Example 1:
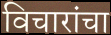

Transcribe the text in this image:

विचारांचा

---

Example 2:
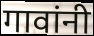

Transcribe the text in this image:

गावांनी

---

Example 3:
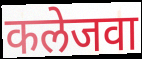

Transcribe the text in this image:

कलेजवा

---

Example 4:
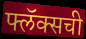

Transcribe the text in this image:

फ्लॅक्सची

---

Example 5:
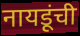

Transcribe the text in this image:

नायडूंची